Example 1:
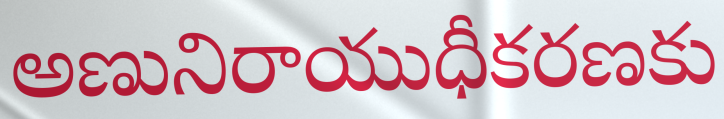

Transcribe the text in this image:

అణునిరాయుధీకరణకు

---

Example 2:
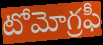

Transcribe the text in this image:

టోమోగ్రఫీ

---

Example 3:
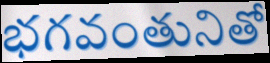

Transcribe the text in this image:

భగవంతునితో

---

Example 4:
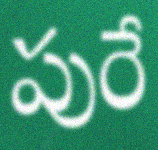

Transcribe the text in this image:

పురే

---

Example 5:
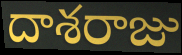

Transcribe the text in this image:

దాశరాజు